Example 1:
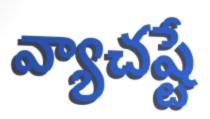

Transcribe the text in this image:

వ్యాచష్టే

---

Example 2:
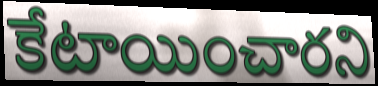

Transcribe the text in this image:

కేటాయించారని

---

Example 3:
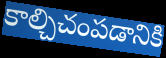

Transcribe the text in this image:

కాల్చిచంపడానికి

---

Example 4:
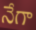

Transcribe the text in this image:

నేగా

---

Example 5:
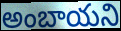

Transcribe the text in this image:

అంబాయని